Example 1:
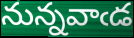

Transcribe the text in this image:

నున్నవాఁడ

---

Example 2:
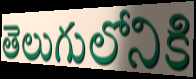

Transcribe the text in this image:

తెలుగులోనికి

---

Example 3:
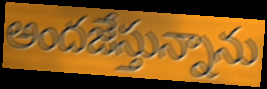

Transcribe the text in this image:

అందజేస్తున్నాను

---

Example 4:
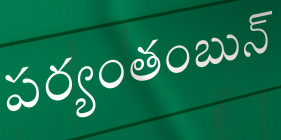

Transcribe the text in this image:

పర్యంతంబున్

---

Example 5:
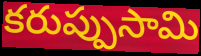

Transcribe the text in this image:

కరుప్పుసామి